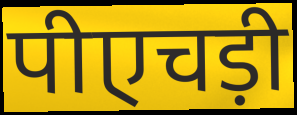
पीएचड़ी